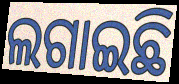
ଲଗାଇଛି